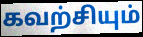
கவற்சியும்